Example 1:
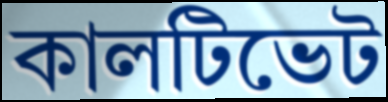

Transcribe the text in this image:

কালটিভেট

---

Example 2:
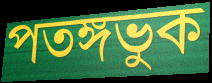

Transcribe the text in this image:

পতঙ্গভুক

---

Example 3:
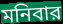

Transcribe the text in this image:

মনিবার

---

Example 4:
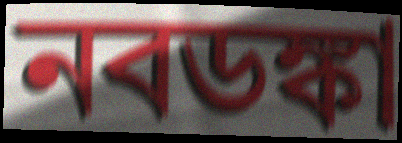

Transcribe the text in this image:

নবডঙ্কা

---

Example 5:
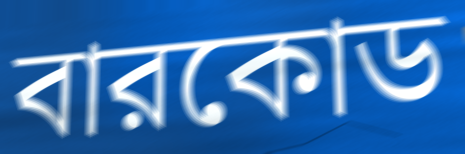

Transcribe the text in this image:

বারকোড